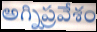
అగ్నిప్రవేశం